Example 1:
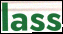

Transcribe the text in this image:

lass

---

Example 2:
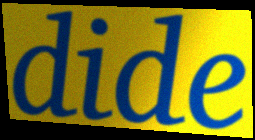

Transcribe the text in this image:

dide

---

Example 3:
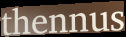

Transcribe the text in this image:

thennus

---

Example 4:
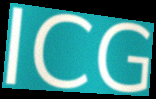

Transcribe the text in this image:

ICG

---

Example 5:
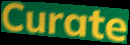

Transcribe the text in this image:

Curate